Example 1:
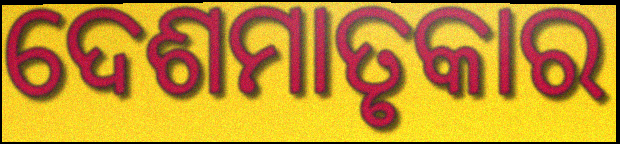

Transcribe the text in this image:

ଦେଶମାତୃକାର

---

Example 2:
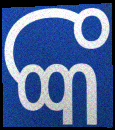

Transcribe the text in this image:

ଙ୍କ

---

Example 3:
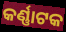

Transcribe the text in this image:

କର୍ଣ୍ଣାଟକ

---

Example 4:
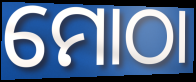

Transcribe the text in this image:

ମୋଠା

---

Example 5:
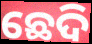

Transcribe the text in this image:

ଛେଦି